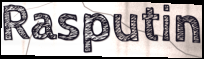
Rasputin